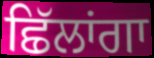
ਛਿੱਲਾਂਗਾ